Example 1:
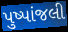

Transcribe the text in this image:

પુષ્પાંજલી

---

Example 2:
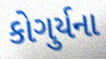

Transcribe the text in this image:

કોગુર્યના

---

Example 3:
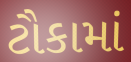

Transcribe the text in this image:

ટૌકામાં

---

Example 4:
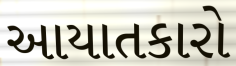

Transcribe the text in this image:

આયાતકારો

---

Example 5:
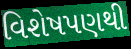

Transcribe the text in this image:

વિશેષપણથી